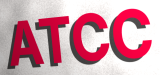
ATCC